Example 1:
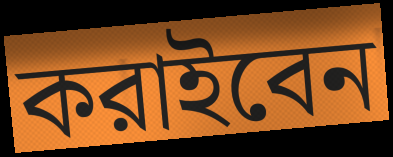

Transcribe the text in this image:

করাইবেন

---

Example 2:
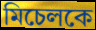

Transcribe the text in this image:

মিচেলকে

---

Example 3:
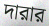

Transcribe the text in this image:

দারার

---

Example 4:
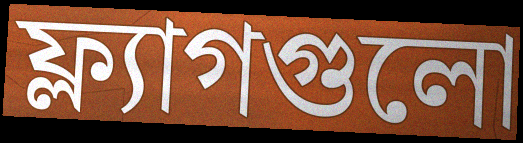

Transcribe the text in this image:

ফ্ল্যাগগুলো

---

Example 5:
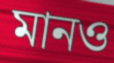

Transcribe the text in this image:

মানও